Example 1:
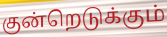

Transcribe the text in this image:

குன்றெடுக்கும்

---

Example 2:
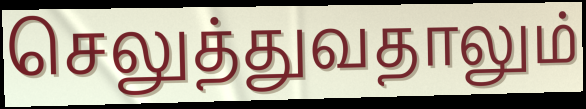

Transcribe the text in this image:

செலுத்துவதாலும்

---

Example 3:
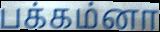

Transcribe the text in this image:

பக்கம்னா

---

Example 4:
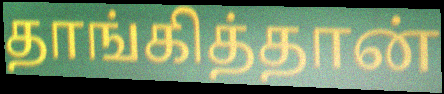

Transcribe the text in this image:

தாங்கித்தான்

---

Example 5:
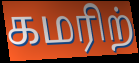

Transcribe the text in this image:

கமரிற்